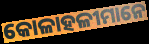
କୋଳାହଳୀମାନେ